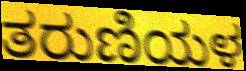
ತರುಣಿಯಳ